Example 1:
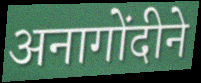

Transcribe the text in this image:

अनागोंदीने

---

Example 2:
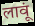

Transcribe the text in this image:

लावूं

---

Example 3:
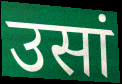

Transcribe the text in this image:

उसां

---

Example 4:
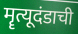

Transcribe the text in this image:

मॄत्यूदंडाची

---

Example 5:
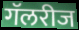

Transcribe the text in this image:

गॅलरीज